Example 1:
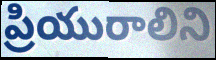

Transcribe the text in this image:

ప్రియురాలిని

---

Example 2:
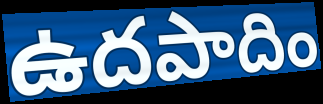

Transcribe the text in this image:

ఉదపాదిం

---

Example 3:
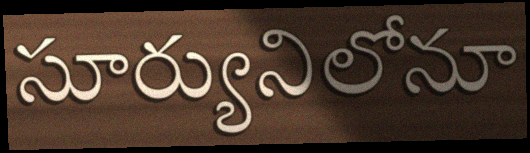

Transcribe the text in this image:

సూర్యునిలోనూ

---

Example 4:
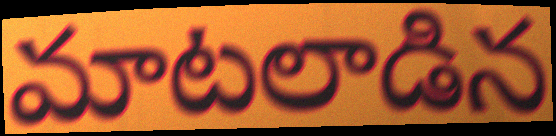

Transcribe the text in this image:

మాటలాడిన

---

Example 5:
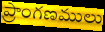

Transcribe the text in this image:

ప్రాంగణములు